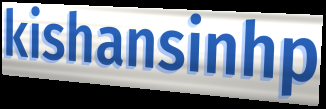
kishansinhp